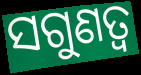
ସଗୁଣତ୍ଵ